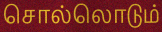
சொல்லொடும்